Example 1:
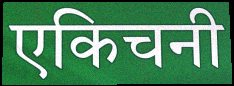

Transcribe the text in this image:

एकिचनी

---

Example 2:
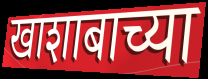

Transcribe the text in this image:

खाशाबाच्या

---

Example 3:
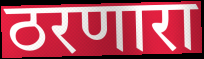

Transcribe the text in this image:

ठरणारा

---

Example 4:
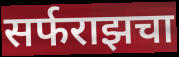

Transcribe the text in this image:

सर्फराझचा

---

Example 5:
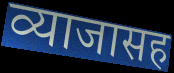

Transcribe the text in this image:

व्याजासह